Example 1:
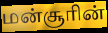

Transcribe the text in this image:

மன்சூரின்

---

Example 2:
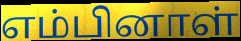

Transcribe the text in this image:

எம்பினாள்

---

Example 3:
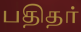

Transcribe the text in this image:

பதிதர்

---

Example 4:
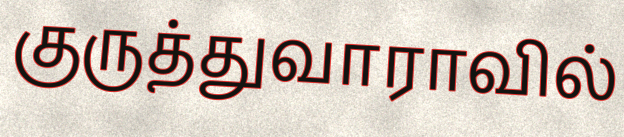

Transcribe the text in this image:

குருத்துவாராவில்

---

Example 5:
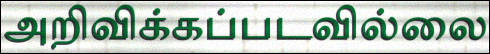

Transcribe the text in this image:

அறிவிக்கப்படவில்லை